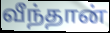
வீந்தான்